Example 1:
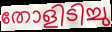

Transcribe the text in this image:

തോളിടിച്ചു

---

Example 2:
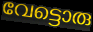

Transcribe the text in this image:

വേട്ടൊരു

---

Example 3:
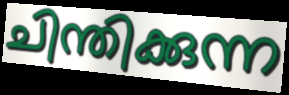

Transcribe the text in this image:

ചിന്തിക്കുന്ന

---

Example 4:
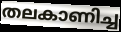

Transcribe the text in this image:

തലകാണിച്ച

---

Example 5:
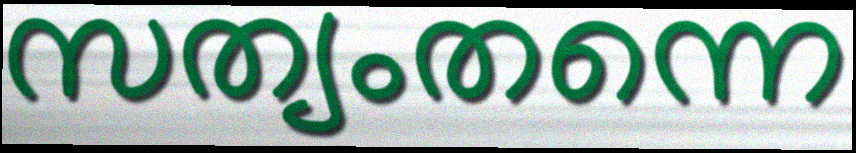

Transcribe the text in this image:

സത്യംതന്നെ